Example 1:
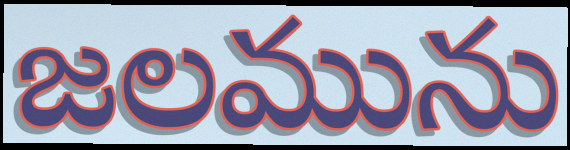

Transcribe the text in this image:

జలమును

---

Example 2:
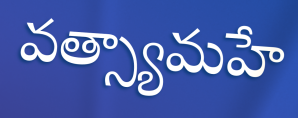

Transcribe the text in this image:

వత్స్యామహే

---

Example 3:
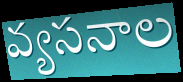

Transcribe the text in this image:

వ్యసనాల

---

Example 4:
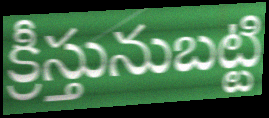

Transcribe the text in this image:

క్రీస్తునుబట్టి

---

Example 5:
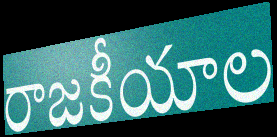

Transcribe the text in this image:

రాజకీయాల